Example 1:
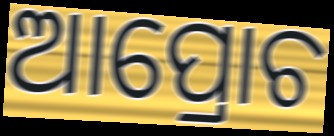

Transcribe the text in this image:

ଆପ୍ରୋଚ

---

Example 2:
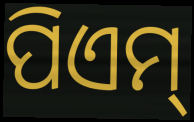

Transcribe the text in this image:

ପିଏମ୍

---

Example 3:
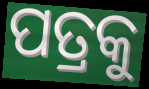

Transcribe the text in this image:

ପତ୍ରକୁ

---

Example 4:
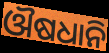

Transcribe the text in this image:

ଔଷଧାନି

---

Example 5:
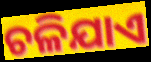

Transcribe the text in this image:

ଚଳିଯାଏ